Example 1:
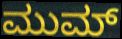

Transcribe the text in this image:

ಮುಮ್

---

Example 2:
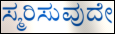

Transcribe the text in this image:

ಸ್ಮರಿಸುವುದೇ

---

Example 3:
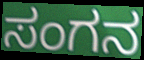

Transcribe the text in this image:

ಸಂಗನ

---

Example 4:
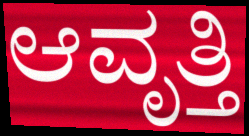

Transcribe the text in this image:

ಆವೃತ್ತಿ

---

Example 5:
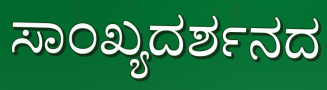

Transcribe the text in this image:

ಸಾಂಖ್ಯದರ್ಶನದ